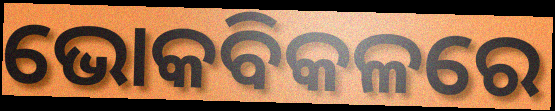
ଭୋକବିକଳରେ